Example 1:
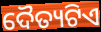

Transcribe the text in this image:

ଦୈତ୍ୟଟିଏ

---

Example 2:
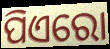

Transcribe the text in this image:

ପିଏରୋ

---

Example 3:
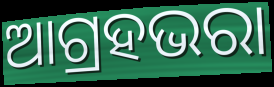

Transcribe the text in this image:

ଆଗ୍ରହଭରା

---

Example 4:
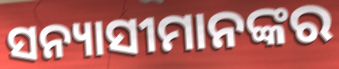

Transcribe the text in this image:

ସନ୍ୟାସୀମାନଙ୍କର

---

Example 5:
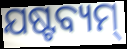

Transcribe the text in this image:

ଯଷ୍ଟବ୍ୟମ୍